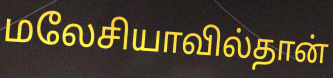
மலேசியாவில்தான்